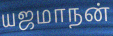
யஜமாநன்